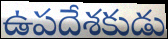
ఉపదేశకుడు